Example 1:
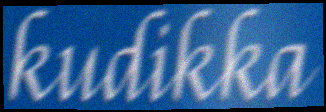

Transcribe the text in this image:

kudikka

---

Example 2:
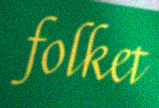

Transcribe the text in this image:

folket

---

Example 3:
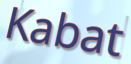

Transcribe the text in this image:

Kabat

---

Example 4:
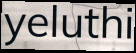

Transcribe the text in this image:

yeluthi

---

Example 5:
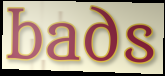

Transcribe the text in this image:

bads